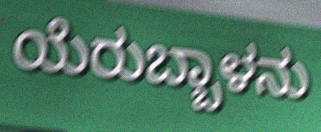
ಯೆರುಬ್ಬಾಳನು